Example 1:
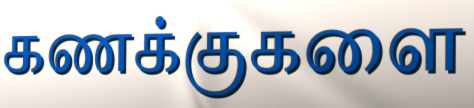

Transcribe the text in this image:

கணக்குகளை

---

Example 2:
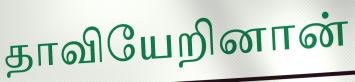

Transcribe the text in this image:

தாவியேறினான்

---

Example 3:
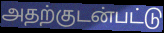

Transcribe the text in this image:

அதற்குடன்பட்டு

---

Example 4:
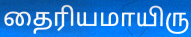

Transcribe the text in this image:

தைரியமாயிரு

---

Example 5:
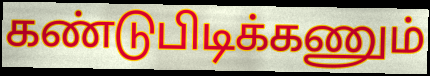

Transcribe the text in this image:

கண்டுபிடிக்கணும்